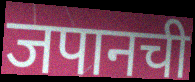
जपानची